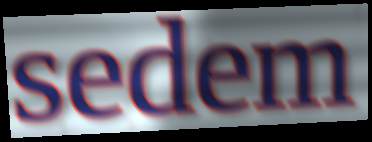
sedem